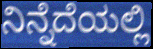
ನಿನ್ನೆದೆಯಲ್ಲಿ